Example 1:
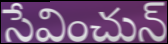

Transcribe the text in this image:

సేవించున్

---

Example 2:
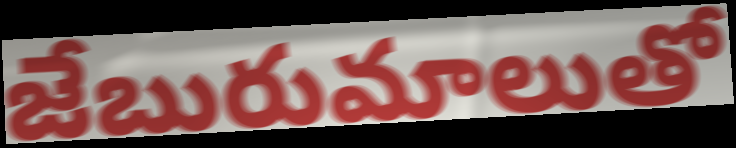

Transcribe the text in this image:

జేబురుమాలుతో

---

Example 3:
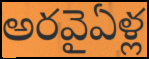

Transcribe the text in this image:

అరవైఏళ్ల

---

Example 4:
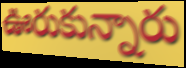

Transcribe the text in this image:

ఊరుకున్నారు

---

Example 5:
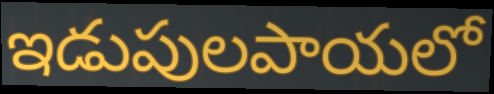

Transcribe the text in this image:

ఇడుపులపాయలో